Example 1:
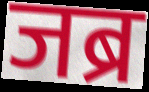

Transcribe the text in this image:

जब्र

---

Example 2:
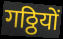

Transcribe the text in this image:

गठ्ठियों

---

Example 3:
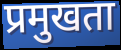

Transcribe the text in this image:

प्रमुखता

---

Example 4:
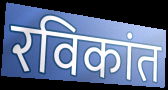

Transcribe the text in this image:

रविकांत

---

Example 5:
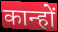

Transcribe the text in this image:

कान्हों